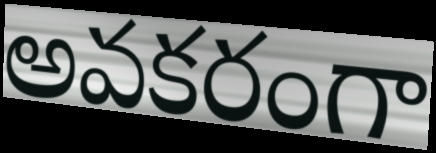
అవకరంగా